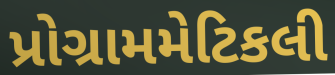
પ્રોગ્રામમેટિકલી